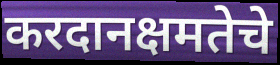
करदानक्षमतेचे